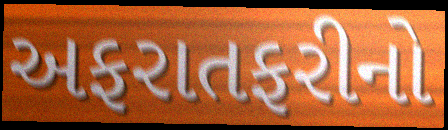
અફરાતફરીનો